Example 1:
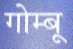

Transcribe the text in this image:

गोम्बू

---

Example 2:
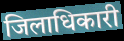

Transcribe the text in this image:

जिलाधिकारी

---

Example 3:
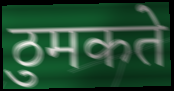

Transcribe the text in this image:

ठुमकते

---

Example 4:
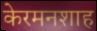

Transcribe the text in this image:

केरमनशाह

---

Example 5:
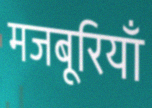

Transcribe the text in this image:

मजबूरियाँ